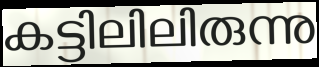
കട്ടിലിലിരുന്നു